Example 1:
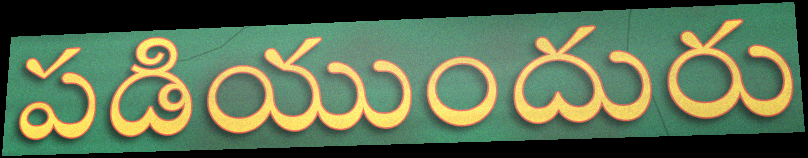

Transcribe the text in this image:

పడియుందురు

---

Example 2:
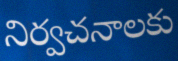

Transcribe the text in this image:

నిర్వచనాలకు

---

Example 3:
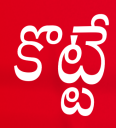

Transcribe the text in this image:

కొట్టే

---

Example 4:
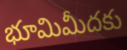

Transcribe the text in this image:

భూమిమీదకు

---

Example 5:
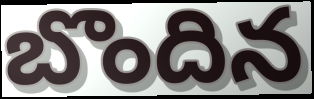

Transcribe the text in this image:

బొందిన